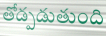
తోడ్పడుతుంది